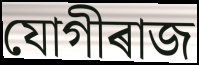
যোগীৰাজ